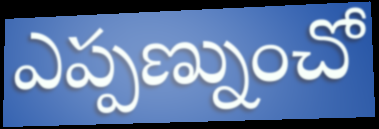
ఎప్పణ్నుంచో